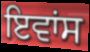
ਇਵਾਂਸ